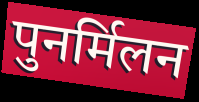
पुनर्मिलन